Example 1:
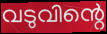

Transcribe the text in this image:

വടുവിന്റെ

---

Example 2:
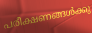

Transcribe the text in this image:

പരീക്ഷണങ്ങൾക്കു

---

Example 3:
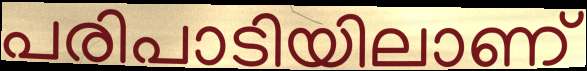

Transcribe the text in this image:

പരിപാടിയിലാണ്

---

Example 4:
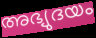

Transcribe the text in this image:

അഭ്യുദയം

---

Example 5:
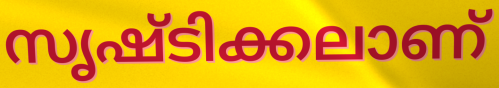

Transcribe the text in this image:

സൃഷ്ടിക്കലാണ്